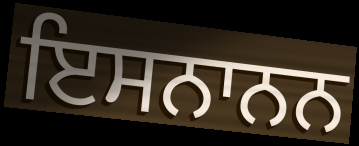
ਇਸਨਾਨਨ